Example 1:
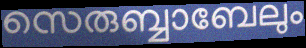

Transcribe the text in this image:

സെരുബ്ബാബേലും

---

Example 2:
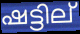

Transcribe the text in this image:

ഷട്ടില്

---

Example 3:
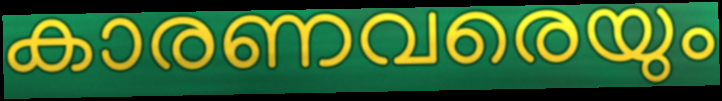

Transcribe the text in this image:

കാരണവരെയും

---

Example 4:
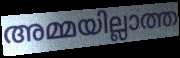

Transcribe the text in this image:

അമ്മയില്ലാത്ത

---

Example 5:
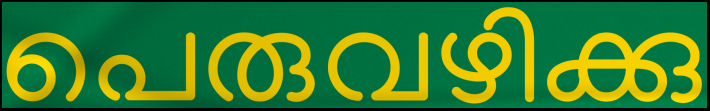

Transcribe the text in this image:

പെരുവഴിക്കു